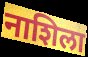
नाशिला